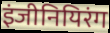
इंजीनियिरंग